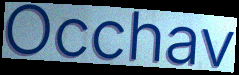
Occhav